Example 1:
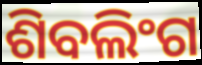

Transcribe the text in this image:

ଶିବଲିଂଗ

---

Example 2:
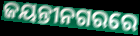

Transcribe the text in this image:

ଜୟନ୍ତୀନଗରରେ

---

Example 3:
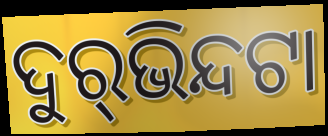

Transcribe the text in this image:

ଦୁର୍‌ଭିନ୍ଦଟା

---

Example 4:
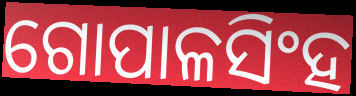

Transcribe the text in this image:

ଗୋପାଳସିଂହ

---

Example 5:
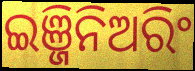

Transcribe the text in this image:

ଇଞ୍ଜିନିଅରିଂ